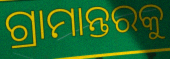
ଗ୍ରାମାନ୍ତରକୁ